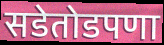
सडेतोडपणा